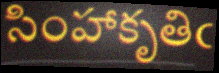
సింహాకృతిఁ